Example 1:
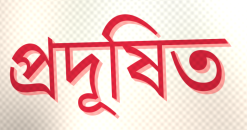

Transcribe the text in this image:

প্ৰদূষিত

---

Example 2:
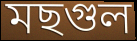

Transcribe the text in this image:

মছগুল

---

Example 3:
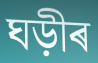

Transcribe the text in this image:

ঘড়ীৰ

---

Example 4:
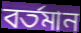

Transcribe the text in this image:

বৰ্তমান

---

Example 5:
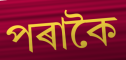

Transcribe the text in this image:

পৰাকৈ